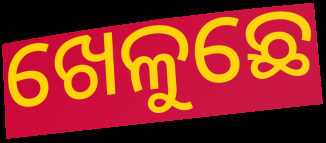
ଖେଳୁଛେ